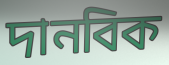
দানবিক